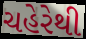
ચહેરેથી